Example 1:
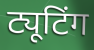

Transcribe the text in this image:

ट्यूटिंग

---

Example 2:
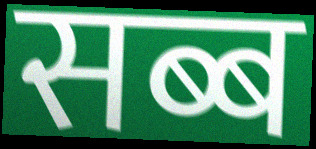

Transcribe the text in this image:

सब्ब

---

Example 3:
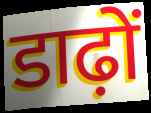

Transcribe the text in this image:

डाढ़ों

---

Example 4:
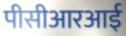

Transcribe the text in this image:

पीसीआरआई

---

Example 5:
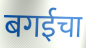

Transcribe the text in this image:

बगईचा